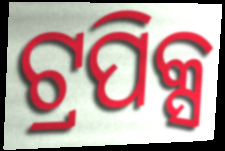
ଟ୍ରପିକ୍ସ